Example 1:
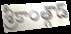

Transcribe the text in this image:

శ్రీకాంత్గౌడ్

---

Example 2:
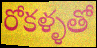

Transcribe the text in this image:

రోకళ్ళతో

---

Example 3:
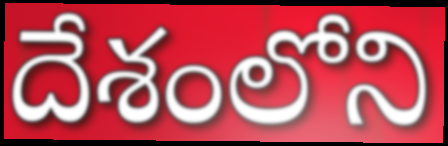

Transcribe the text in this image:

దేశంలోని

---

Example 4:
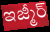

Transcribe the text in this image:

ఇజ్మీర్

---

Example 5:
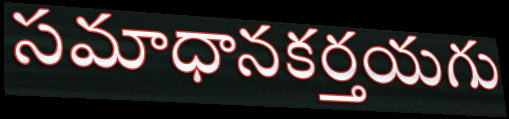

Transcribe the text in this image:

సమాధానకర్తయగు